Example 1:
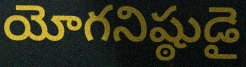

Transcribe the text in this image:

యోగనిష్ఠుడై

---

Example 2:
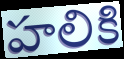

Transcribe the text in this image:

హలికి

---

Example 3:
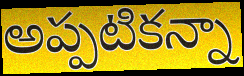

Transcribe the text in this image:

అప్పటికన్నా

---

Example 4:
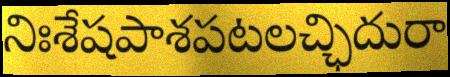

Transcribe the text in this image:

నిఃశేషపాశపటలచ్ఛిదురా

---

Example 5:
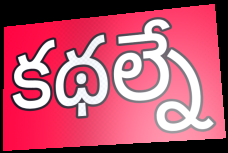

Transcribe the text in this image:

కథల్నే